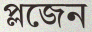
প্লজেন